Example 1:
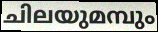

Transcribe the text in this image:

ചിലയുമമ്പും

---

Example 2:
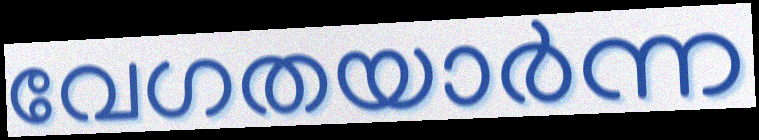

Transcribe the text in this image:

വേഗതയാർന്ന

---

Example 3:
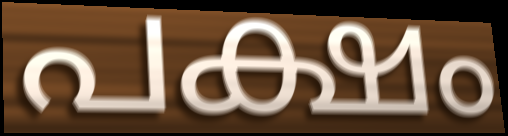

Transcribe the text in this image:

പക്ഷം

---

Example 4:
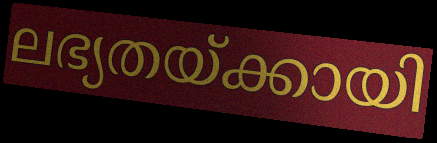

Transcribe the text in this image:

ലഭ്യതയ്ക്കായി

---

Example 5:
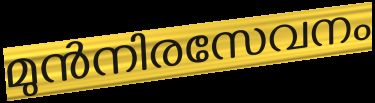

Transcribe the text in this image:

മുൻനിരസേവനം